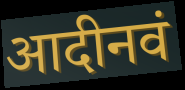
आदीनवं